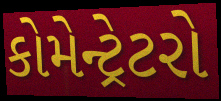
કોમેન્ટ્રેટરો